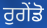
ਰੁਗੇਂਡੋ